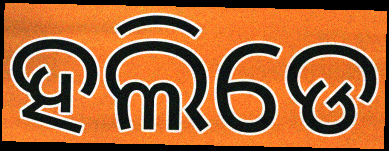
ହଲିଡେ